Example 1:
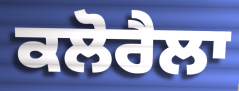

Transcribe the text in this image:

ਕਲੋਰੈਲਾ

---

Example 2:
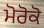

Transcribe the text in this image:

ਮੋਰੋਕੋ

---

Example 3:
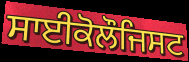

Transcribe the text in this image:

ਸਾਈਕੋਲੌਜਿਸਟ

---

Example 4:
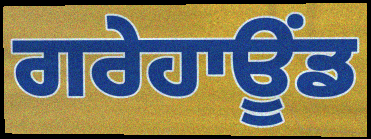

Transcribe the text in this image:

ਗਰੇਹਾਊਂਡ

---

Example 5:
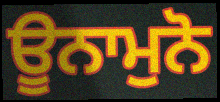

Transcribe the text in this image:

ਊਨਾਮੁਨੋ